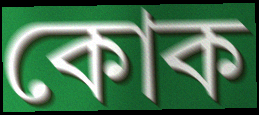
কোক